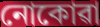
নোকোৱা